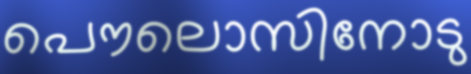
പൌലൊസിനോടു